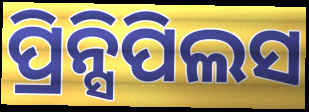
ପ୍ରିନ୍ସିପିଲସ